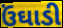
ઉંઘાડી